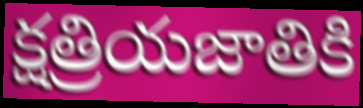
క్షత్రియజాతికి